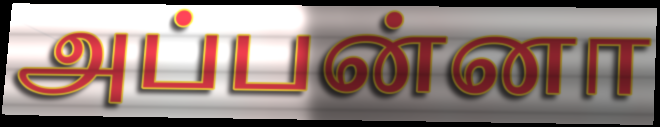
அப்பன்னா